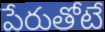
పేరుతోటే